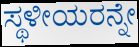
ಸ್ಥಳೀಯರನ್ನೇ